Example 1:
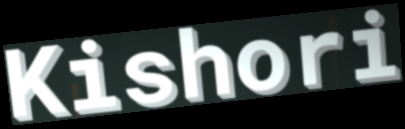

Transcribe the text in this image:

Kishori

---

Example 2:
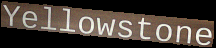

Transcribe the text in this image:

Yellowstone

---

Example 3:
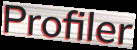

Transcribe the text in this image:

Profiler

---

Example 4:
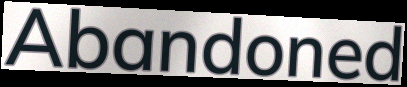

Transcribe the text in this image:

Abandoned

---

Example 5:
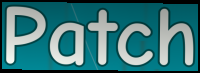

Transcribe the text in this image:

Patch